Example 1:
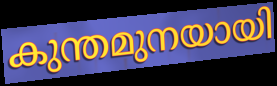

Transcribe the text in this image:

കുന്തമുനയായി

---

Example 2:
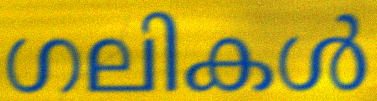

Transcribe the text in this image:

ഗലികൾ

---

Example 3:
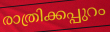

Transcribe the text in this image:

രാത്രിക്കപ്പുറം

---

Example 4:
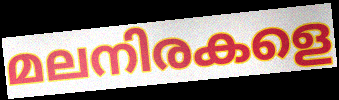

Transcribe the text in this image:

മലനിരകളെ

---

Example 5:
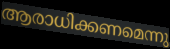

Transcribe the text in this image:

ആരാധിക്കണമെന്നു